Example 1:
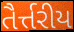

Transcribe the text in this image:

તૈર્ત્તરીય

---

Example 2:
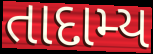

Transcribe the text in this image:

તાદામ્ય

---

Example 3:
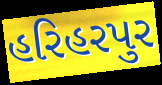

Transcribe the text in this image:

હરિહરપુર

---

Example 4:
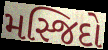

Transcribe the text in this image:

મસ્જિદો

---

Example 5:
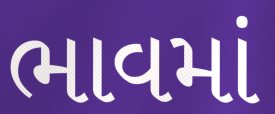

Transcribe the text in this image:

ભાવમાં